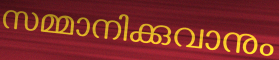
സമ്മാനിക്കുവാനും